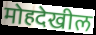
मोहदेखील